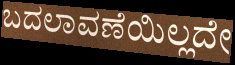
ಬದಲಾವಣೆಯಿಲ್ಲದೇ